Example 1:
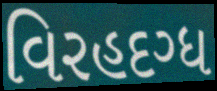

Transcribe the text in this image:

વિરહદગ્ધ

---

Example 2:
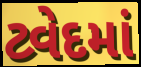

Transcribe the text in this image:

ટ્વેદમાં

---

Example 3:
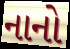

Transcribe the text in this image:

નાનો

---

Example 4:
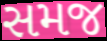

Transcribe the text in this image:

સમજ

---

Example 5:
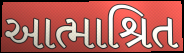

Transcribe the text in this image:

આત્માશ્રિત